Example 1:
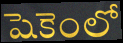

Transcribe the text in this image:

షెకెంలో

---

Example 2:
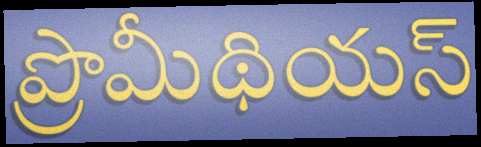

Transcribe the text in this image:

ప్రొమీథియస్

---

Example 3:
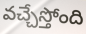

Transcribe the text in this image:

వచ్చేస్తోంది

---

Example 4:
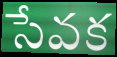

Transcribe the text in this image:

సేవక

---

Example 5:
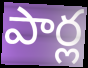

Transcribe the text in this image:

పార్ల